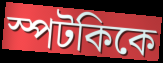
স্পটকিকে